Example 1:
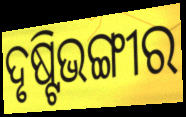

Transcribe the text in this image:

ଦୃଷ୍ଟିଭଙ୍ଗୀର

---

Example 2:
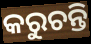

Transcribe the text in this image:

କରୁଚନ୍ତି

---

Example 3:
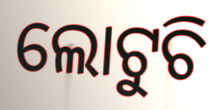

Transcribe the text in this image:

ଲୋଟୁଚି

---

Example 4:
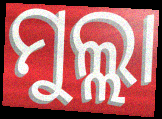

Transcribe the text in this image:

ମୁଲ୍ଲା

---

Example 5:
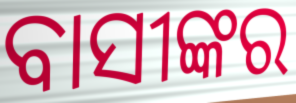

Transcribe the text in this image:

ବାସୀଙ୍କର